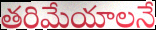
తరిమేయాలనే